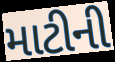
માટીની